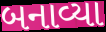
બનાવ્યા